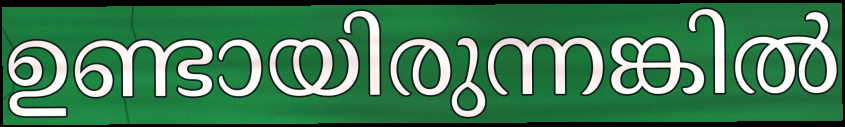
ഉണ്ടായിരുന്നങ്കിൽ